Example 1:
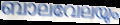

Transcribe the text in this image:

ബാലവേലയും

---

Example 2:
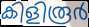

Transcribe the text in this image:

കിളിരൂർ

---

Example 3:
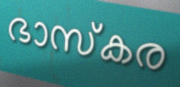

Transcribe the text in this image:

ഭാസ്കര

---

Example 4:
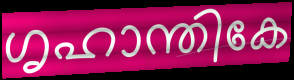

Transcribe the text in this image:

ഗൃഹാന്തികേ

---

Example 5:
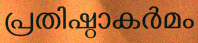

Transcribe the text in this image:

പ്രതിഷ്ഠാകർമം